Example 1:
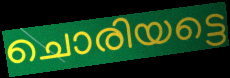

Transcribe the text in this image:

ചൊരിയട്ടെ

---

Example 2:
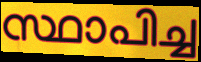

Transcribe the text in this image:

സ്ഥാപിച്ച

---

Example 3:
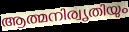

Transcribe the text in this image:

ആത്മനിര്വൃതിയും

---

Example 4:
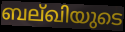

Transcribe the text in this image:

ബല്ഖിയുടെ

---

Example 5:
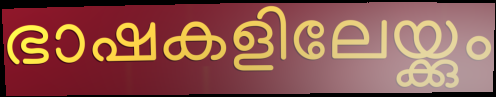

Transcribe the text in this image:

ഭാഷകളിലേയ്ക്കും